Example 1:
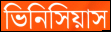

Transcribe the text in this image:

ভিনিসিয়াস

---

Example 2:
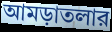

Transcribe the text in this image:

আমড়াতলার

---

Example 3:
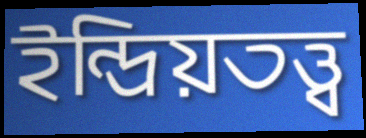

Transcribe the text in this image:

ইন্দ্রিয়তত্ত্ব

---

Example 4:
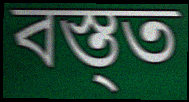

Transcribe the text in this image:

বস্ত্ত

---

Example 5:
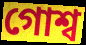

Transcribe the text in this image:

গোশ্ব